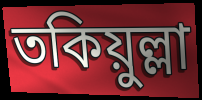
তকিয়ুল্লা